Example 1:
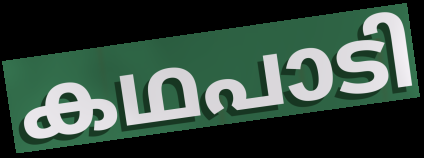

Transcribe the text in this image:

കഥപാടി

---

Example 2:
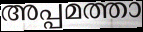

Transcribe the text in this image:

അപ്പമത്താ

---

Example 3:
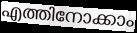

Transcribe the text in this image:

എത്തിനോക്കാം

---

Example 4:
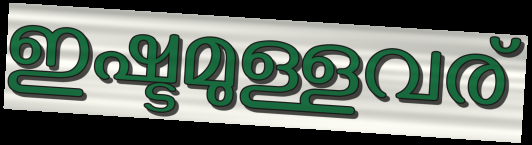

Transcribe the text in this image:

ഇഷ്ടമുള്ളവര്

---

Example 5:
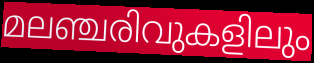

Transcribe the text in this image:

മലഞ്ചരിവുകളിലും